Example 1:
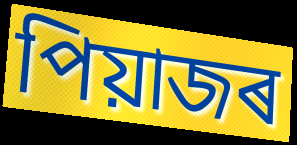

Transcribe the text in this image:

পিয়াজৰ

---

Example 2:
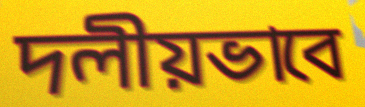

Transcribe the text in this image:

দলীয়ভাবে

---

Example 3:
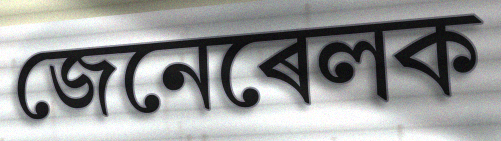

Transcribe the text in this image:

জেনেৰেলক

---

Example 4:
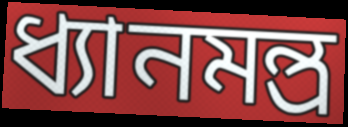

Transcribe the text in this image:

ধ্যানমন্ত্ৰ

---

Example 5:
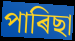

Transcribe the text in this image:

পাৰিছা